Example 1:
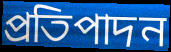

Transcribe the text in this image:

প্রতিপাদন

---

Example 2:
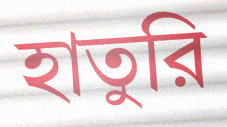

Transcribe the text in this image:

হাতুরি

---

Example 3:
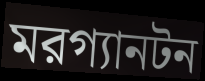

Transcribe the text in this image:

মরগ্যানটন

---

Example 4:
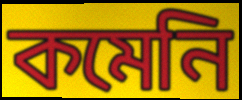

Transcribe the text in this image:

কমেনি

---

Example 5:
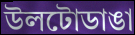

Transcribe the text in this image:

উলটোডাঙা